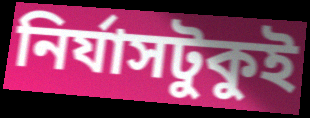
নির্যাসটুকুই